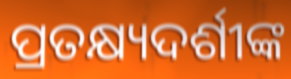
ପ୍ରତକ୍ଷ୍ୟଦର୍ଶୀଙ୍କ